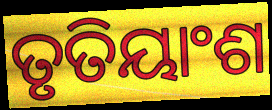
ତୃତିୟାଂଶ